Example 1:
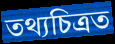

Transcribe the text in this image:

তথ্যচিত্ৰত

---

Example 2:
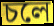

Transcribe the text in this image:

চলে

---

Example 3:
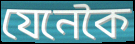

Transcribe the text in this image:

যেনেকৈ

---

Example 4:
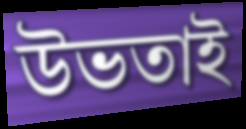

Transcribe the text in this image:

উভতাই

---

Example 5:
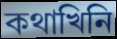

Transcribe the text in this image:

কথাখিনি